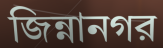
জিন্নানগর